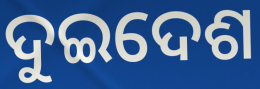
ଦୁଇଦେଶ